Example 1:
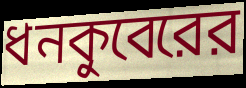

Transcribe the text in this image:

ধনকুবেরের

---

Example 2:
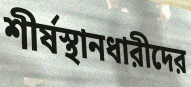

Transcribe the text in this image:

শীর্ষস্থানধারীদের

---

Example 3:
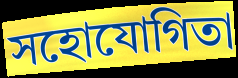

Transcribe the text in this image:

সহোযোগিতা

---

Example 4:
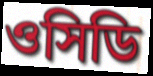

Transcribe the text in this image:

ওসিডি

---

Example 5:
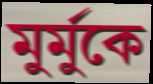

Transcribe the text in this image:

মুর্মুকে